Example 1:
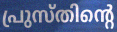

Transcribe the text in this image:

പ്രുസ്തിന്റെ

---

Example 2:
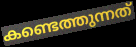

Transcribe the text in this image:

കണ്ടെത്തുന്നത്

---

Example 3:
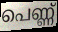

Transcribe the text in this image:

പെണ്ണ്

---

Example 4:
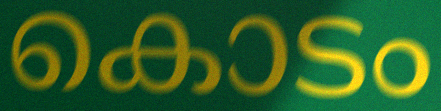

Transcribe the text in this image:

കൊടം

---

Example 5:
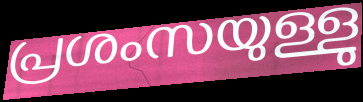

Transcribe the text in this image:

പ്രശംസയുള്ളു